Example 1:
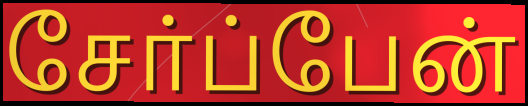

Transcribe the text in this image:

சேர்ப்பேன்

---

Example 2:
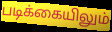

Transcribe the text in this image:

படிக்கையிலும்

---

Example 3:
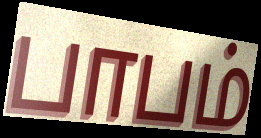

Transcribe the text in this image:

பாபம்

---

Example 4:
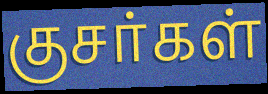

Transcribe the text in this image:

குசர்கள்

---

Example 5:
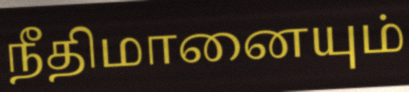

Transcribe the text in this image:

நீதிமானையும்